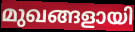
മുഖങ്ങളായി